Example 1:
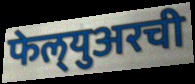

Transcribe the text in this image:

फेल्युअरची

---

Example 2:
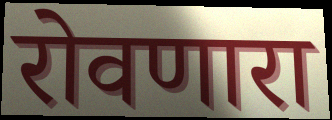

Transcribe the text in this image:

रोवणारा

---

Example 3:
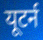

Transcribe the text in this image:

यूटर्न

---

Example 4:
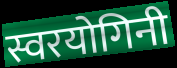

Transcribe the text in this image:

स्वरयोगिनी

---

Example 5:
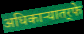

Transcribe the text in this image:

अधिकाऱ्यातर्फे